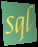
sql